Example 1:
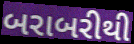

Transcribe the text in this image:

બરાબરીથી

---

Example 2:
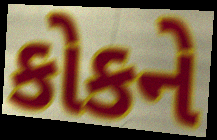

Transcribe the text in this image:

કોકને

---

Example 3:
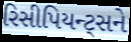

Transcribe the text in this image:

રિસીપિયન્ટ્સને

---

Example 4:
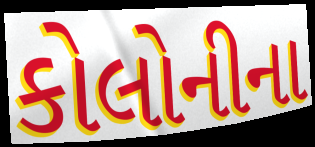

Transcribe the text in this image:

કોલોનીના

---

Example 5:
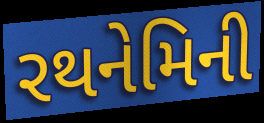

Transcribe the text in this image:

રથનેમિની